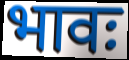
भावः